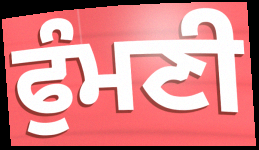
ਫੁੰਮਣੀ